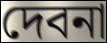
দেবনা